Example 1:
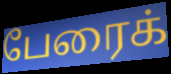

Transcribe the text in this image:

பேரைக்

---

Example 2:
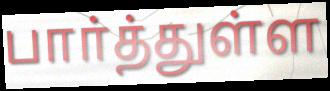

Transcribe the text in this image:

பார்த்துள்ள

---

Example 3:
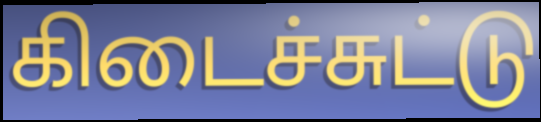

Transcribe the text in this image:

கிடைச்சுட்டு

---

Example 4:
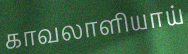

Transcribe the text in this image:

காவலாளியாய்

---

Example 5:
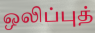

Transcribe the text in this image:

ஒலிப்புத்